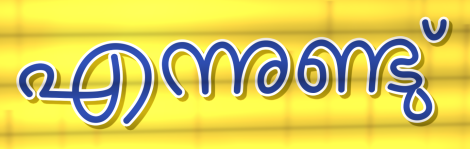
എന്നുണ്ടു്